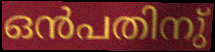
ഒൻപതിനു്